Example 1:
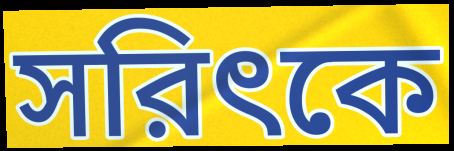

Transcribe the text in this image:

সরিৎকে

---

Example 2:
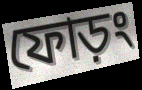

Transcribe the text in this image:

ফোড়ং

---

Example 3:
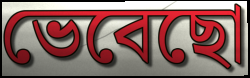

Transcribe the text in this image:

ভেবেছো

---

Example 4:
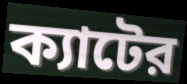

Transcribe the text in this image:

ক্যাটের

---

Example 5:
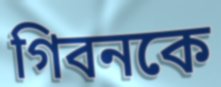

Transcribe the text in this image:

গিবনকে